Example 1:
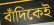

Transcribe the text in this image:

বাঁদিকেই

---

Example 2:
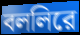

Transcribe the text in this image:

বললিরে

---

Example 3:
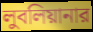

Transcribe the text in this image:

লুবলিয়ানার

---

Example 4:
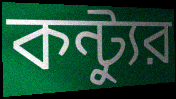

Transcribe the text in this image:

কন্ট্যুর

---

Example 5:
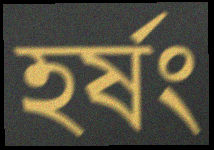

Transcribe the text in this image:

হর্ষং